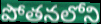
పోతనలోని